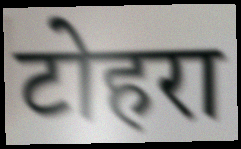
टोहरा